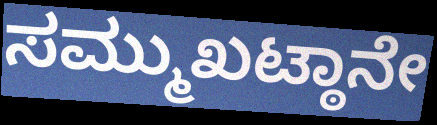
ಸಮ್ಮುಖಟ್ಠಾನೇ